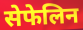
सेफेलिन